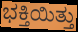
ಭಕ್ತಿಯಿತ್ತು